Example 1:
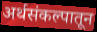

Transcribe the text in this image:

अर्थसंकल्पातून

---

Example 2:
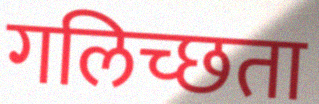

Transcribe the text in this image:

गलिच्छता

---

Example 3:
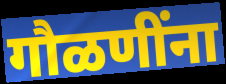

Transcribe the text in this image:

गौळणींना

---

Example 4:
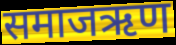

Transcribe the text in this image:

समाजऋण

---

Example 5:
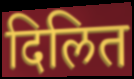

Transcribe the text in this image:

दिलित